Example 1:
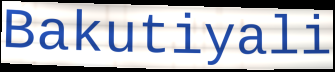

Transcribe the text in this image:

Bakutiyali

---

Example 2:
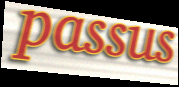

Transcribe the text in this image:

passus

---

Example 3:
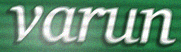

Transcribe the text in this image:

varun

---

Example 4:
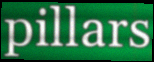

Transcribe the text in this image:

pillars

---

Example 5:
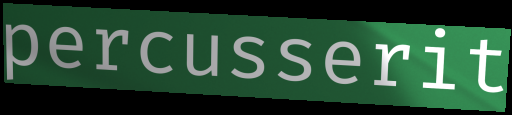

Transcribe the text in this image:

percusserit